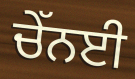
ਚੇੱਨਈ